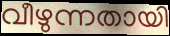
വീഴുന്നതായി